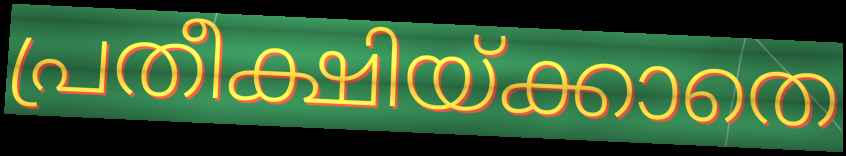
പ്രതീക്ഷിയ്ക്കാതെ